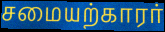
சமையற்காரர்